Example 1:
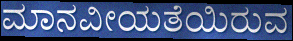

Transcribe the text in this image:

ಮಾನವೀಯತೆಯಿರುವ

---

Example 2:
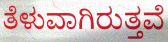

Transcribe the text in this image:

ತೆಳುವಾಗಿರುತ್ತವೆ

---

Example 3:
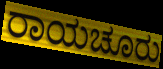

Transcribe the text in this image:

ರಾಯಚೂರು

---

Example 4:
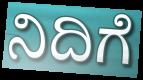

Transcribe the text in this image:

ನಿದಿಗೆ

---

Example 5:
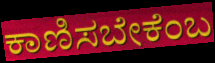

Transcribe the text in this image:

ಕಾಣಿಸಬೇಕೆಂಬ